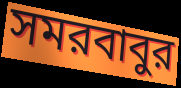
সমরবাবুর